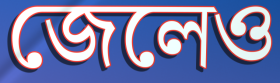
জেলেও